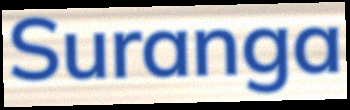
Suranga